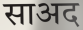
साअद